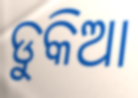
ଡୁକିଆ